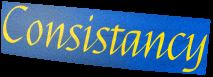
Consistancy